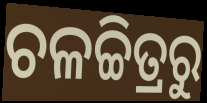
ଚଳଚ୍ଚିତ୍ରରୁ